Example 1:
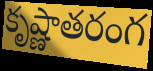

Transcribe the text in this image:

కృష్ణాతరంగ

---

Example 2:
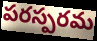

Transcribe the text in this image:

పరస్పరమ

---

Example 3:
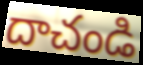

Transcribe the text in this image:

దాచండి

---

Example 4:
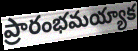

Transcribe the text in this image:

ప్రారంభమయ్యాక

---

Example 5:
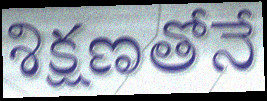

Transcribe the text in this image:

శిక్షణతోనే